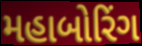
મહાબોરિંગ